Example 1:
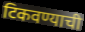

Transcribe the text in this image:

टिकवण्याची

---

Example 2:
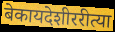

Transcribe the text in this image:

बेकायदेशीररीत्या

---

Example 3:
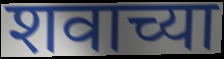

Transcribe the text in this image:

शवाच्या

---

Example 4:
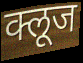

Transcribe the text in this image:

क्लूज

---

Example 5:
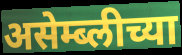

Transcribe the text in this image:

असेम्ब्लीच्या